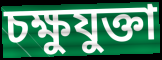
চক্ষুযুক্তা